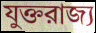
যুক্তরাজ্য